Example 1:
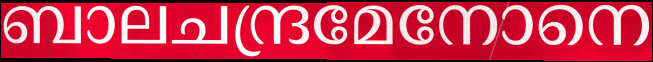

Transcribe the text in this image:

ബാലചന്ദ്രമേനോനെ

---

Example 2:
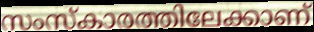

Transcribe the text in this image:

സംസ്കാരത്തിലേക്കാണ്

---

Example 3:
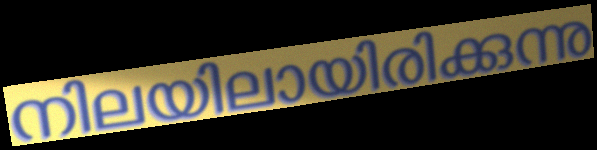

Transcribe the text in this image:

നിലയിലായിരിക്കുന്നു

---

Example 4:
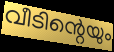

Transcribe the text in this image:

വീടിന്റെയും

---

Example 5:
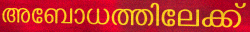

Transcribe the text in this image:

അബോധത്തിലേക്ക്